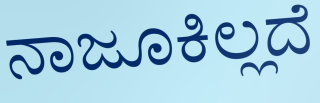
ನಾಜೂಕಿಲ್ಲದೆ